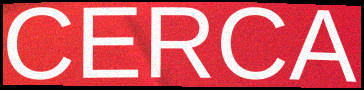
CERCA